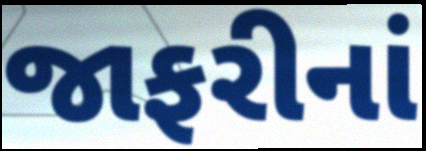
જાફરીનાં